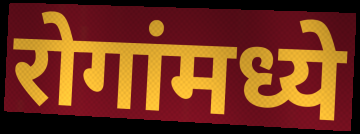
रोगांमध्ये